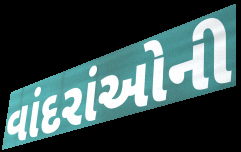
વાંદરાંઓની